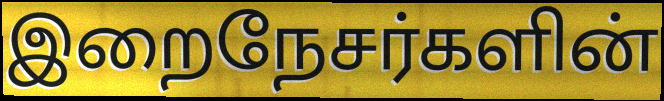
இறைநேசர்களின்